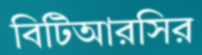
বিটিআরসির